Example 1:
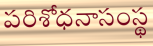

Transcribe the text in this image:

పరిశోధనాసంస్థ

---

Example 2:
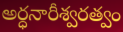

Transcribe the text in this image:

అర్ధనారీశ్వరత్వం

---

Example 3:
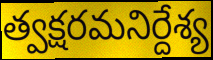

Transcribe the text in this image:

త్వక్షరమనిర్దేశ్య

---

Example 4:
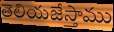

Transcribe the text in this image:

తెలియజేస్తాము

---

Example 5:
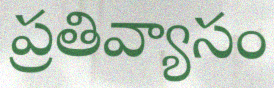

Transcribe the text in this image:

ప్రతివ్యాసం